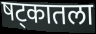
षट्कातला